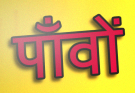
पाँवों